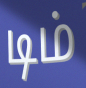
டிம்